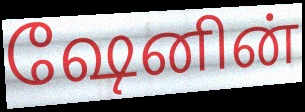
ஷேனின்